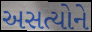
અસત્યોને